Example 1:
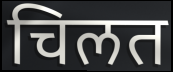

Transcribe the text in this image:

चिलत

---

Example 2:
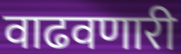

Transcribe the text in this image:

वाढवणारी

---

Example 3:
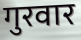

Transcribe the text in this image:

गुरवार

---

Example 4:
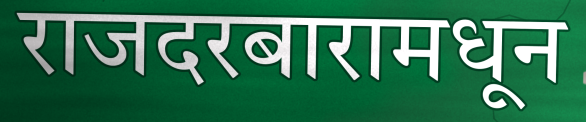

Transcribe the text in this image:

राजदरबारामधून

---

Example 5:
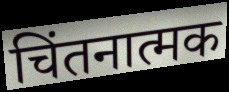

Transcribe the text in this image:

चिंतनात्मक